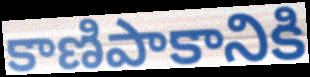
కాణిపాకానికి